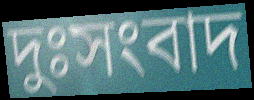
দুঃসংবাদ